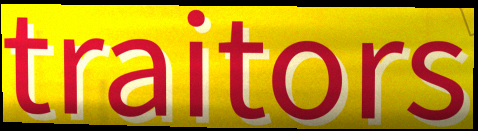
traitors